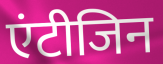
एंटीजिन